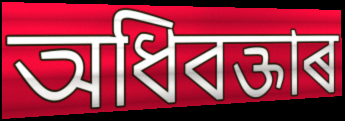
অধিবক্তাৰ